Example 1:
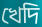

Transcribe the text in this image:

খেদি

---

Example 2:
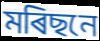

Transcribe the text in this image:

মৰিছনে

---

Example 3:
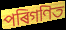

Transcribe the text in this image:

পৰিগণিত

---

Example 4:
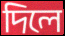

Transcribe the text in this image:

দিলে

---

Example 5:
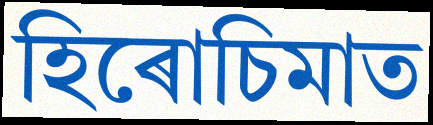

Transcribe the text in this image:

হিৰোচিমাত